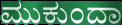
ಮುಕುಂದಾ